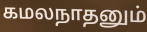
கமலநாதனும்